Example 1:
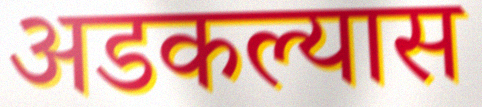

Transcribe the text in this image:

अडकल्यास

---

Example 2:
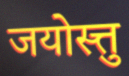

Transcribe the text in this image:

जयोस्त्तु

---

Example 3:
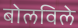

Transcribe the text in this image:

बोलविले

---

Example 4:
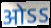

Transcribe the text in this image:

ओऽऽ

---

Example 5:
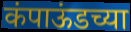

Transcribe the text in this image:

कंपाऊंडच्या